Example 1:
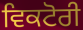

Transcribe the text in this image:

ਵਿਕਟੋਰੀ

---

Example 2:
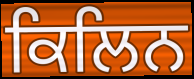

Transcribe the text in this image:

ਕਿਲਿਨ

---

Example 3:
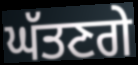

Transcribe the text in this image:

ਘੱਤਣਗੇ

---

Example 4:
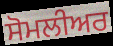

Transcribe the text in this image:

ਸੋਮਲੀਅਰ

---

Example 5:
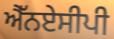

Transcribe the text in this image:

ਐੱਨਏਸੀਪੀ